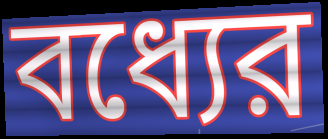
বধ্যের